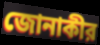
জোনাকীর